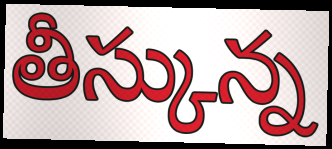
తీస్కున్న